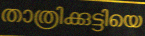
താത്രിക്കുട്ടിയെ